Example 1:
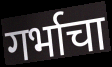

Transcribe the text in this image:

गर्भाचा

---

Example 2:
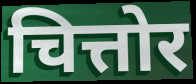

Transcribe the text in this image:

चित्तोर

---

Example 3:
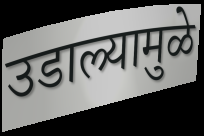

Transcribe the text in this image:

उडाल्यामुळे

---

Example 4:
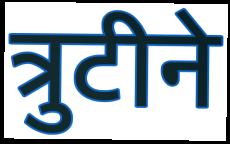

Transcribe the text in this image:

त्रुटीने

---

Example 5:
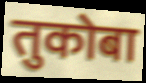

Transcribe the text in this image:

तुकोबा